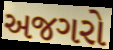
અજગરો